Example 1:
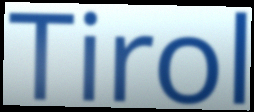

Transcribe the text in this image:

Tirol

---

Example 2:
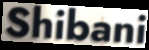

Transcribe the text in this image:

Shibani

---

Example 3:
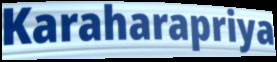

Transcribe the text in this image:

Karaharapriya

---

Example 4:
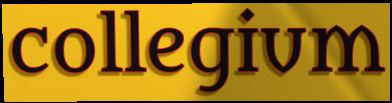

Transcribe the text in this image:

collegium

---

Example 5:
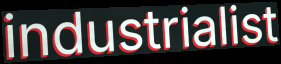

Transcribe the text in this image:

industrialist